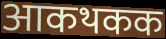
आकथकक